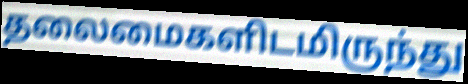
தலைமைகளிடமிருந்து